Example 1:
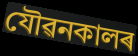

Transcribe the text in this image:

যৌৱনকালৰ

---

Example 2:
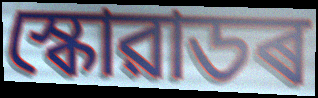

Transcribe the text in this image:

স্কোৱাডৰ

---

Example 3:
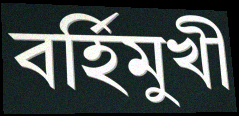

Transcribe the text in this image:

বৰ্হিমুখী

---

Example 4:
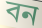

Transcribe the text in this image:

বন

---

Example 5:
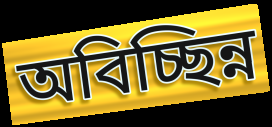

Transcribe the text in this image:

অবিচ্ছিন্ন